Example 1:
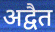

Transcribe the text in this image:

अद्वैत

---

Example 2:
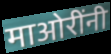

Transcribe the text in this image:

माओरींनी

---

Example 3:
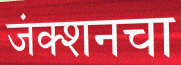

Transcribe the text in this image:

जंक्शनचा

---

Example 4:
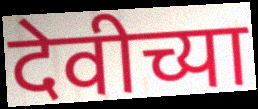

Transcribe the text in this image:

देवीच्या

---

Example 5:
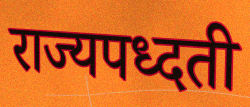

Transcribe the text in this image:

राज्यपध्दती